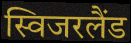
स्विजरलैंड